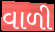
વાળી